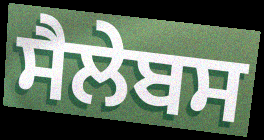
ਸੈਲੇਬਸ